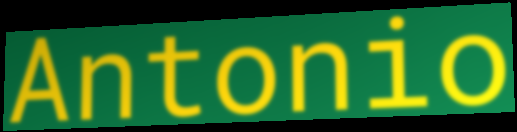
Antonio